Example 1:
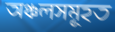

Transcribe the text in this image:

অঞ্চলসমূহত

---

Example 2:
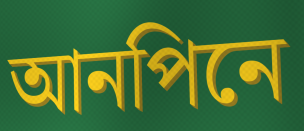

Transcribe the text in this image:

আনপিনে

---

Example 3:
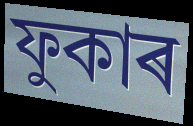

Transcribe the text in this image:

ফুকাৰ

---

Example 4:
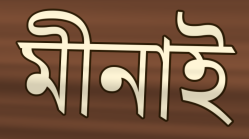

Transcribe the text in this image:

মীনাই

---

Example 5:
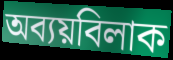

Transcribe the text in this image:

অব্যয়বিলাক